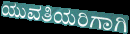
ಯುವತಿಯರಿಗಾಗಿ